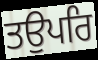
ਤਉਪਰਿ